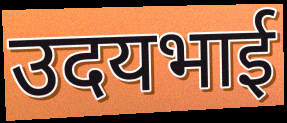
उदयभाई